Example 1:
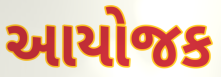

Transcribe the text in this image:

આયોજક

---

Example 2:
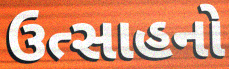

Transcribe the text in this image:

ઉત્સાહનો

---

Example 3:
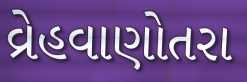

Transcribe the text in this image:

વ્રેહવાણોતરા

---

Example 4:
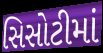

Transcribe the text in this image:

સિસોટીમાં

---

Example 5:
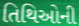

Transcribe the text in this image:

તિથિઓની